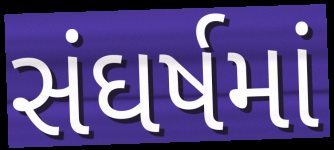
સંઘર્ષમાં